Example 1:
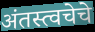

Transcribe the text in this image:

अंतस्त्वचेचे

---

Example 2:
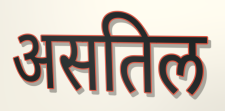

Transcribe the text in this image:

असतिल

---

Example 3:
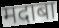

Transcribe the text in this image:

मदाबा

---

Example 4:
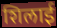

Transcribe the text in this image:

शिलाई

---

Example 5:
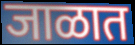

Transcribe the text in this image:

जाळात